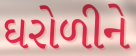
ઘરોળીને